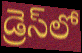
డ్రెస్‌లో